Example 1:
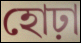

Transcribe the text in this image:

হোঢ়া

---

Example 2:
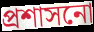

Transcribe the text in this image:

প্ৰশাসনো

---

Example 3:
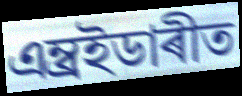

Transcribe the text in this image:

এম্ব্ৰইডাৰীত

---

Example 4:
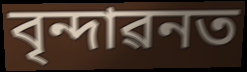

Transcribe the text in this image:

বৃন্দাৱনত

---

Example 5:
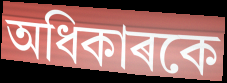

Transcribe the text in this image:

অধিকাৰকে